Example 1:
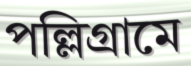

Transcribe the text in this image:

পল্লিগ্রামে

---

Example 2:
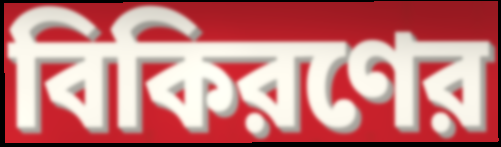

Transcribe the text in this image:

বিকিরণের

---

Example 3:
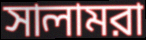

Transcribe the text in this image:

সালামরা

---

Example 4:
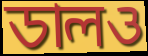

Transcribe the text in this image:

ডালও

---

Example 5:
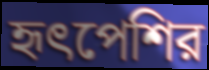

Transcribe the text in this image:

হৃৎপেশির